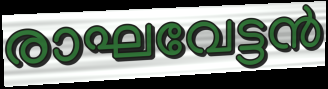
രാഘവേട്ടൻ